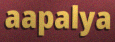
aapalya